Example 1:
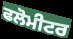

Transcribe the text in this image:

ਫਲੋਮੀਟਰ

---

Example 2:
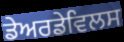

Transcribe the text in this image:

ਡੇਅਰਡੇਵਿਲਸ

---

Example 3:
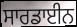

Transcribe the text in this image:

ਸਾਰਡਾਈਨ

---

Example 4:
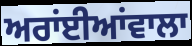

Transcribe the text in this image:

ਅਰਾਂਈਆਂਵਾਲਾ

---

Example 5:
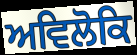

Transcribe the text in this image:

ਅਵਿਲੋਕਿ